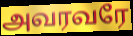
அவரவரே